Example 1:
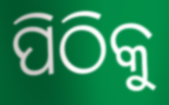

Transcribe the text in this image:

ପିଠିକୁ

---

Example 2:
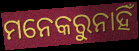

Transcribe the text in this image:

ମନେକରୁନାହିଁ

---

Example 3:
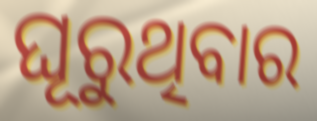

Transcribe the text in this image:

ଘୂରୁଥିବାର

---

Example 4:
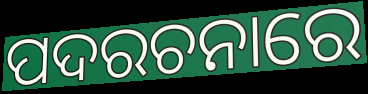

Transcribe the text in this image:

ପଦରଚନାରେ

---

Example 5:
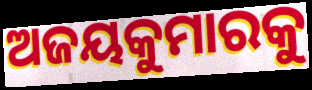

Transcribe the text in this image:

ଅଜୟକୁମାରକୁ